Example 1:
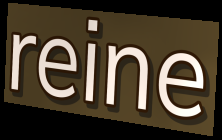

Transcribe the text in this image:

reine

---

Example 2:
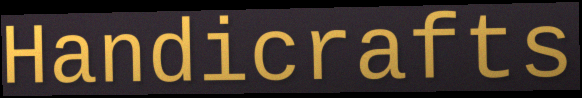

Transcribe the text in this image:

Handicrafts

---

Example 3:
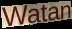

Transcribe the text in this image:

Watan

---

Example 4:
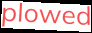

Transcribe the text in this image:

plowed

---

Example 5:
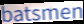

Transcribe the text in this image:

batsmen